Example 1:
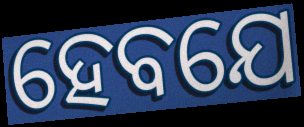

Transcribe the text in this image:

ହେବଯେ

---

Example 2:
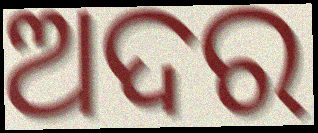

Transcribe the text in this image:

ଅଦର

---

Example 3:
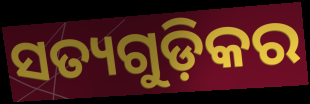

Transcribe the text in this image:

ସତ୍ୟଗୁଡ଼ିକର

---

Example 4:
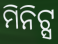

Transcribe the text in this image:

ମିନିଟ୍ସ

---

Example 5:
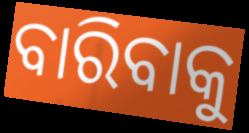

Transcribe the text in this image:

ବାରିବାକୁ